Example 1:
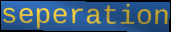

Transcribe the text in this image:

seperation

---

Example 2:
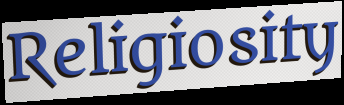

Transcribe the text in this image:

Religiosity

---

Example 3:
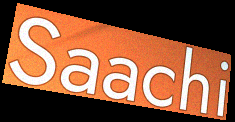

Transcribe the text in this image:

Saachi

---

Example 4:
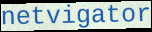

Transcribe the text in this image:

netvigator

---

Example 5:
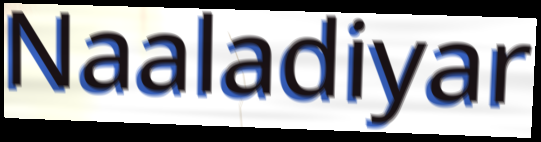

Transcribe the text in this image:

Naaladiyar